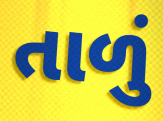
તાળું